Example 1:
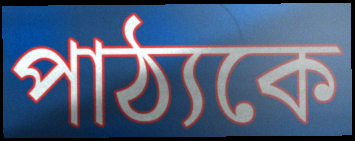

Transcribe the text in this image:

পাঠ্যকে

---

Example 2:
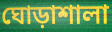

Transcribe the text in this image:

ঘোড়াশালা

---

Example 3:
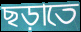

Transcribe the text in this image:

ছড়াতে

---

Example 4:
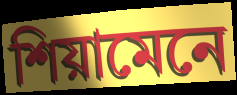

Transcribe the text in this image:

শিয়ামেনে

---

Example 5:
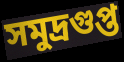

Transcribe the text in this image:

সমুদ্রগুপ্ত